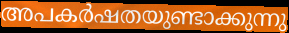
അപകർഷതയുണ്ടാക്കുന്നു